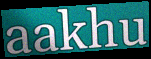
aakhu